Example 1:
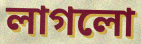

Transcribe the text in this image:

লাগলো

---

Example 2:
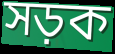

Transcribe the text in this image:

সড়ক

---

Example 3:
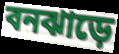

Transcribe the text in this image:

বনঝাড়ে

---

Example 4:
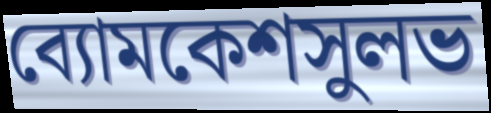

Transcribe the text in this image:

ব্যোমকেশসুলভ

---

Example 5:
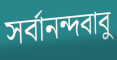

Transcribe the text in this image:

সর্বানন্দবাবু